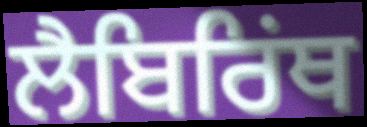
ਲੈਬਿਰਿਂਥ